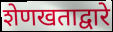
शेणखताद्वारे